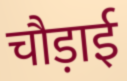
चौड़ाई